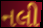
નલી